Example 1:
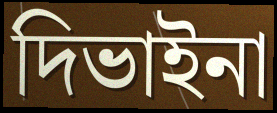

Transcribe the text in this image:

দিভাইনা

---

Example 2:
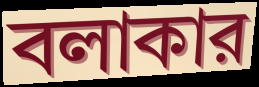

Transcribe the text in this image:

বলাকার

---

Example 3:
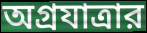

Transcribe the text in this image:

অগ্রযাত্রার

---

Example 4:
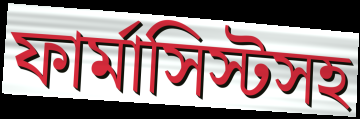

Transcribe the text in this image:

ফার্মাসিস্টসহ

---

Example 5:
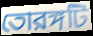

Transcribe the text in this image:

তোরঙ্গটি